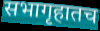
सभागृहातच